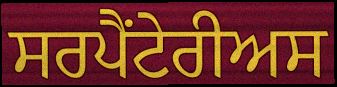
ਸਰਪੈਂਟੇਰੀਅਸ